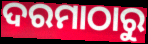
ଦରମାଠାରୁ